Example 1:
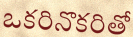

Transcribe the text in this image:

ఒకరినొకరితో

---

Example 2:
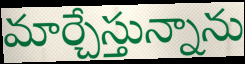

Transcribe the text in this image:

మార్చేస్తున్నాను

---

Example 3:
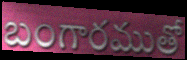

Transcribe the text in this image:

బంగారముతో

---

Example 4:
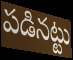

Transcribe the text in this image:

పడినట్టు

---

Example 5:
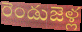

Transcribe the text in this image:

రెండుజెళ్ల